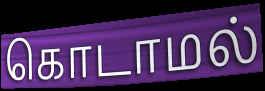
கொடாமல்